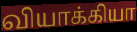
வியாக்கியா